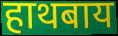
हाथबाय